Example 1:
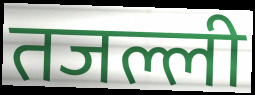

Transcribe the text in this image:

तजल्ली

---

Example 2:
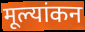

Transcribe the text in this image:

मूल्यांकन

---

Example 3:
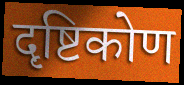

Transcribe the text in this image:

दृष्टिकोण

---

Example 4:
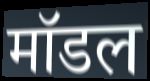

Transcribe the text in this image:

मॉडल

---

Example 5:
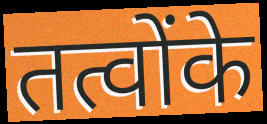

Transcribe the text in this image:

तत्वोंके